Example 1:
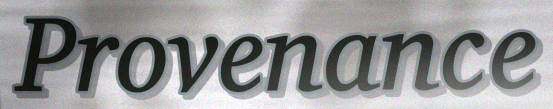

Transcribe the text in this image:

Provenance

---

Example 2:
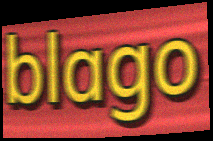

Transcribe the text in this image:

blago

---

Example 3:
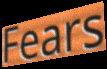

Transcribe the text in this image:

Fears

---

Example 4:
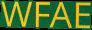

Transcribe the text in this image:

WFAE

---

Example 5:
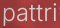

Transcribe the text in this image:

pattri